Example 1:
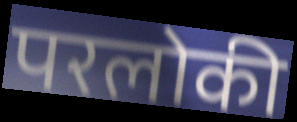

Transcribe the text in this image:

परलोकी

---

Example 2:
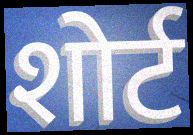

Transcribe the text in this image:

शोर्ट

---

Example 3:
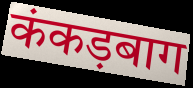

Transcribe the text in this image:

कंकड़बाग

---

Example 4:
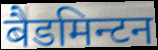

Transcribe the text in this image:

बैडमिन्टन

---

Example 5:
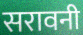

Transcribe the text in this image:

सरावनी